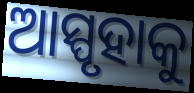
ଆସ୍ପୃହାକୁ